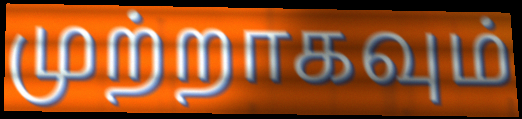
முற்றாகவும்